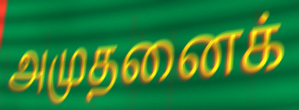
அமுதனைக்